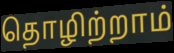
தொழிற்றாம்